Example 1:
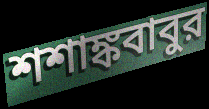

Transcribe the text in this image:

শশাঙ্কবাবুর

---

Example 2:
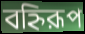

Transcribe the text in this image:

বহ্নিরূপ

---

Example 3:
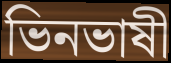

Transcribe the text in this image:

ভিনভাষী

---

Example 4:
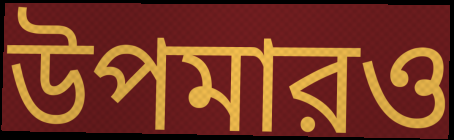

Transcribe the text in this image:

উপমারও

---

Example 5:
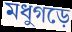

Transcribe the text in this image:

মধুগড়ে